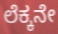
ಲೆಕ್ಕನೇ